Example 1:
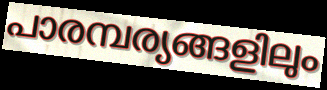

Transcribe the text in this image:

പാരമ്പര്യങ്ങളിലും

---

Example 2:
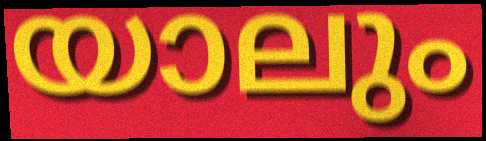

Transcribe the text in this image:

യാലും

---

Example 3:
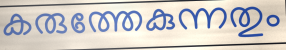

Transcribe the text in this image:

കരുത്തേകുന്നതും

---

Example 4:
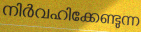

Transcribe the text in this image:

നിർവഹിക്കേണ്ടുന്ന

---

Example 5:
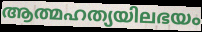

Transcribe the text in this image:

ആത്മഹത്യയിലഭയം